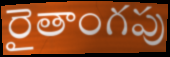
రైతాంగపు